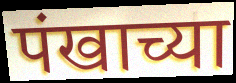
पंखाच्या